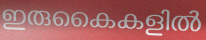
ഇരുകൈകളിൽ